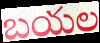
బయల